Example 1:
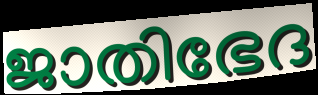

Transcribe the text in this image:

ജാതിഭേദ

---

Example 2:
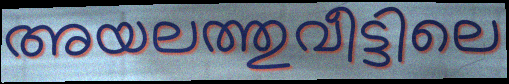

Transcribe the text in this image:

അയലത്തുവീട്ടിലെ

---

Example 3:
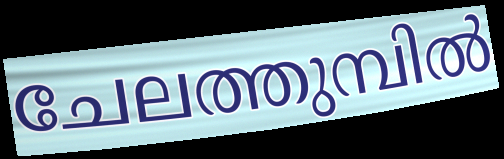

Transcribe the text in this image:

ചേലത്തുമ്പിൽ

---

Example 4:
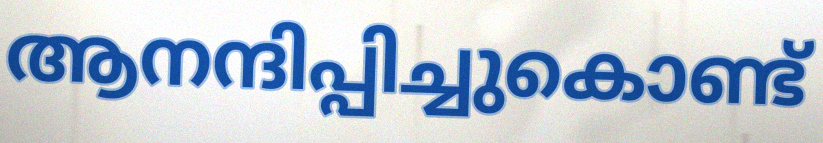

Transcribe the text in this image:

ആനന്ദിപ്പിച്ചുകൊണ്ട്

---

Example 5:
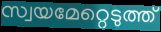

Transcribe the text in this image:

സ്വയമേറ്റെടുത്ത്